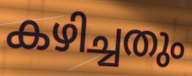
കഴിച്ചതും